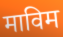
माविम